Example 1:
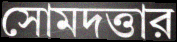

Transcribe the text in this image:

সোমদত্তার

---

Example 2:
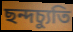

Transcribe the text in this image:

ছন্দচ্যুতি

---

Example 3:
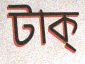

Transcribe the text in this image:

টাক্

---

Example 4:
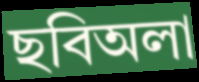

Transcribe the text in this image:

ছবিঅলা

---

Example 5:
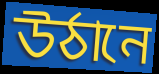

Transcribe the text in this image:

উঠানে